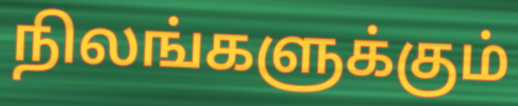
நிலங்களுக்கும்